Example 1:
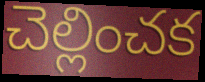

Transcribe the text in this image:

చెల్లించక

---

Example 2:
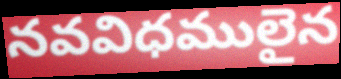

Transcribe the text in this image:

నవవిధములైన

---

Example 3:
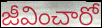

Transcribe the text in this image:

జీవించారో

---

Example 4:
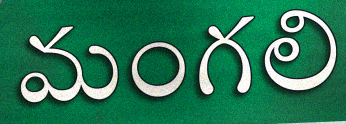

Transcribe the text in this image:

మంగలి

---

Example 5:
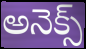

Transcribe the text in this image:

అనెక్స్